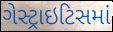
ગેસ્ટ્રાઇટિસમાં